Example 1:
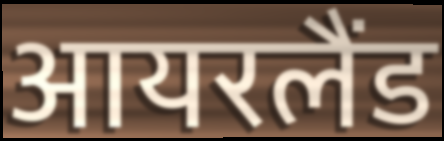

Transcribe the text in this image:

आयरलैंड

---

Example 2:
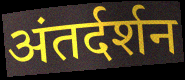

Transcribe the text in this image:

अंतर्दर्शन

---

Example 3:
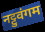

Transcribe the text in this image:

नट्टुवंगम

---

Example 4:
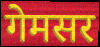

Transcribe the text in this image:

गेमसर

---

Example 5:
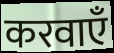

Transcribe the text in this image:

करवाएँ